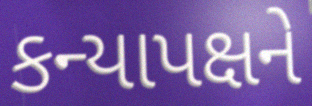
કન્યાપક્ષને